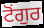
ਟੋਂਗੁਰ